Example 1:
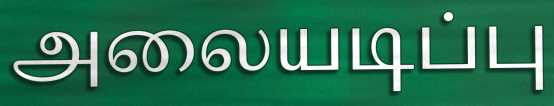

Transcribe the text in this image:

அலையடிப்பு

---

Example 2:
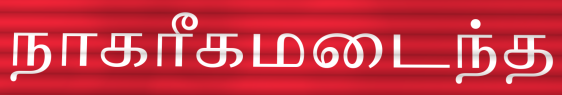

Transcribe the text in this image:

நாகரீகமடைந்த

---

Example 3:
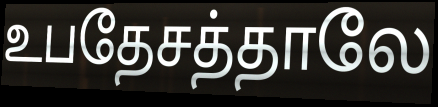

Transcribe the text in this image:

உபதேசத்தாலே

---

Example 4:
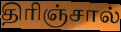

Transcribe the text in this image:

திரிஞ்சால்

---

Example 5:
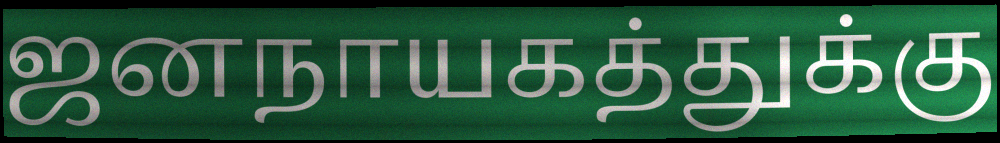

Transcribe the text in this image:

ஜனநாயகத்துக்கு